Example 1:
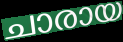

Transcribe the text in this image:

ചാരായ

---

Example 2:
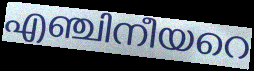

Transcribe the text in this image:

എഞ്ചിനീയറെ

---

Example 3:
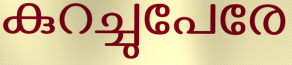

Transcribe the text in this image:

കുറച്ചുപേരേ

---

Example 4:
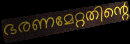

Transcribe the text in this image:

ഭരണമേറ്റതിന്റെ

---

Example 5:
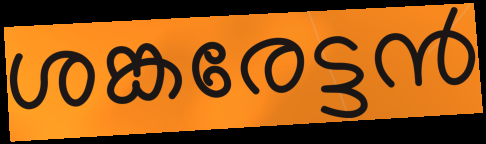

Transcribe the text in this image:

ശങ്കരേട്ടൻ